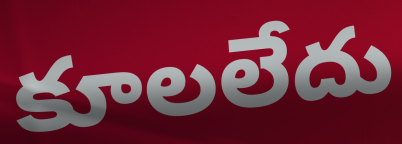
కూలలేదు